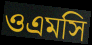
ওএমসি